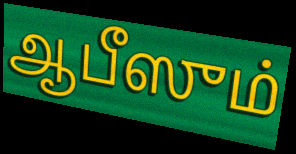
ஆபீஸும்